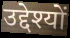
उद्देश्यों